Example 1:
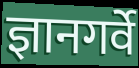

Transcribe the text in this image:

ज्ञानगर्वे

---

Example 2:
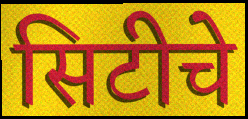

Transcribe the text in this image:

सिटीचे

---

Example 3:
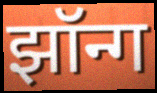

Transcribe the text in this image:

झॉन्ग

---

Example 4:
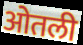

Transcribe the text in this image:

ओतली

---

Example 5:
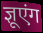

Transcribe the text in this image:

ज्ञूएंग